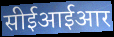
सीईआईआर